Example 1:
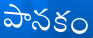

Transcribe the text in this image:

పానకం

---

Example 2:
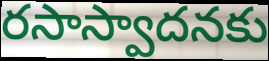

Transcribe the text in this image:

రసాస్వాదనకు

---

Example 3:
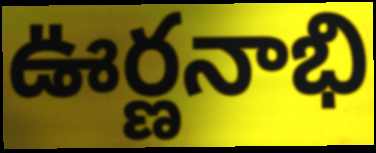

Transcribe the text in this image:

ఊర్ణనాభి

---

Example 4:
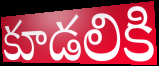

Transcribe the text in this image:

కూడలికి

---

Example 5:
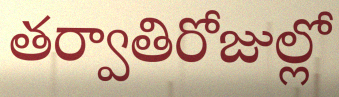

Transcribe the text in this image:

తర్వాతిరోజుల్లో